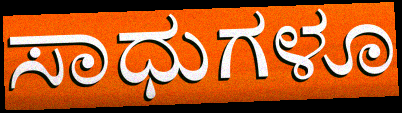
ಸಾಧುಗಳೂ